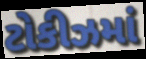
ટોકીઝમાં